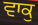
ਵਾਕੁ